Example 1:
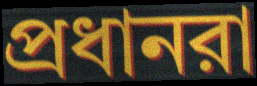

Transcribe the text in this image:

প্রধানরা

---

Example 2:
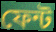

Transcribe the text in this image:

ফেন্ট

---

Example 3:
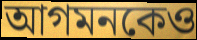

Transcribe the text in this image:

আগমনকেও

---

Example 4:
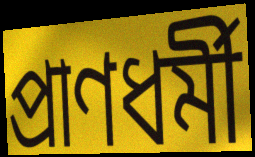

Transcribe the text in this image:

প্রাণধর্মী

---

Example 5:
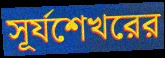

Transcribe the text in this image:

সূর্যশেখরের